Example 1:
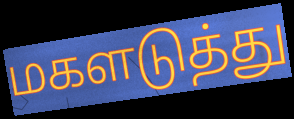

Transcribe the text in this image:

மகளடுத்து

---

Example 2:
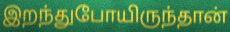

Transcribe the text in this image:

இறந்துபோயிருந்தான்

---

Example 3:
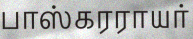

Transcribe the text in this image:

பாஸ்கரராயர்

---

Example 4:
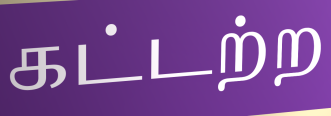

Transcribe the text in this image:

கட்டற்ற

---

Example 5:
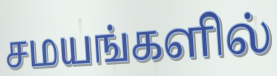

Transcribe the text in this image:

சமயங்களில்